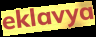
eklavya